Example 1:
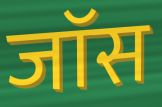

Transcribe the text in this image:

जॉस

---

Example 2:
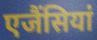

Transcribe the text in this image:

एजैंसियां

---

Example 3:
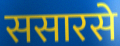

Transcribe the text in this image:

ससारसे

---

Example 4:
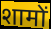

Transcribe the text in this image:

शामों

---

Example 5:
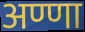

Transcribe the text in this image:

अण्णा